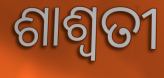
ଶାଶ୍ଵତୀ